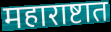
महाराष्टात